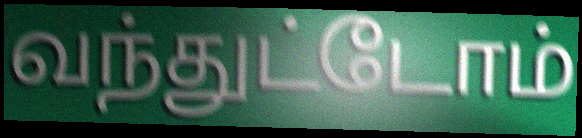
வந்துட்டோம்